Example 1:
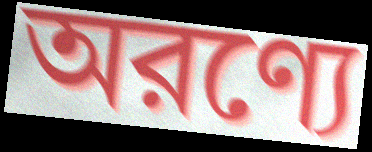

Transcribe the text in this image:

অরণ্যে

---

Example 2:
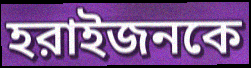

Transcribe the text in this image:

হরাইজনকে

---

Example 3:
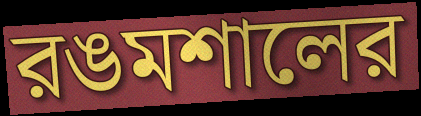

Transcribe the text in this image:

রঙমশালের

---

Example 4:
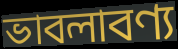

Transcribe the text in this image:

ভাবলাবণ্য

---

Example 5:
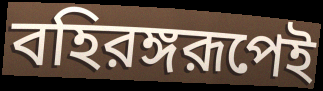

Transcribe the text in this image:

বহিরঙ্গরূপেই